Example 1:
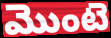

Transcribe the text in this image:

మొంటె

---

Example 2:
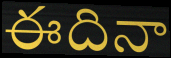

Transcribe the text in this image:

ఈదినా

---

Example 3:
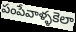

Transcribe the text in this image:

పంపేవాళ్ళకెలా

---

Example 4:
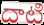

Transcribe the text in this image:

దాటి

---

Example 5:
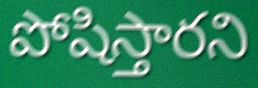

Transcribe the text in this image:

పోషిస్తారని